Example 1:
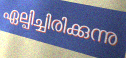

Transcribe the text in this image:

ഏല്പിച്ചിരിക്കുന്നു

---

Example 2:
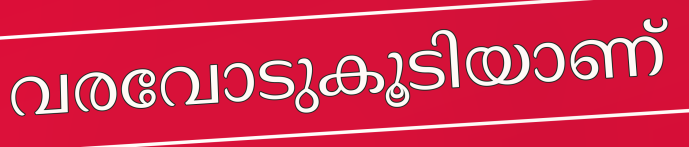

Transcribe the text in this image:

വരവോടുകൂടിയാണ്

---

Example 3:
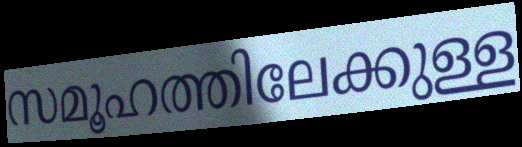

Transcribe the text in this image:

സമൂഹത്തിലേക്കുള്ള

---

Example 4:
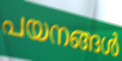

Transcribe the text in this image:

പയനങ്ങൾ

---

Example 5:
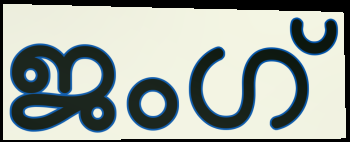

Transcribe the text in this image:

ജംഗ്